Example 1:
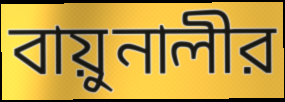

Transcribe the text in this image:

বায়ুনালীর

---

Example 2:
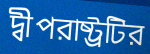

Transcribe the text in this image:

দ্বীপরাষ্ট্রটির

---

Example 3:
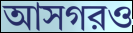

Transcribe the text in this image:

আসগরও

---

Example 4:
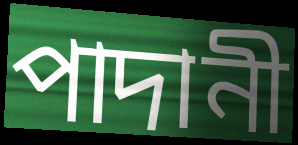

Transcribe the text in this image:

পাদানী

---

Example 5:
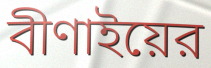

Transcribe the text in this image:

বীণাইয়ের